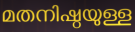
മതനിഷ്ഠയുള്ള